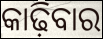
କାଢ଼ିବାର